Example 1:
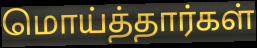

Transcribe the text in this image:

மொய்த்தார்கள்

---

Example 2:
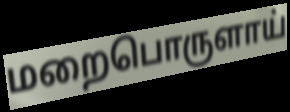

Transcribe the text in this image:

மறைபொருளாய்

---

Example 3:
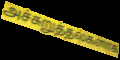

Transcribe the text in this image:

அச்சுறுத்தல்களாக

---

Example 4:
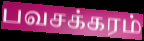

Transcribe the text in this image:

பவசக்கரம்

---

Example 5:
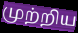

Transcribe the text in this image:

முற்றிய